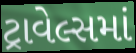
ટ્રાવેલ્સમાં